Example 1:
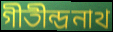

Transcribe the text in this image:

গীতীন্দ্রনাথ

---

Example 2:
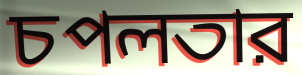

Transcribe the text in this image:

চপলতার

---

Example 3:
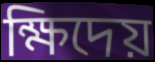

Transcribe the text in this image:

ক্ষিদেয়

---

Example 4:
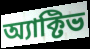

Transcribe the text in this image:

অ্যাক্টিভ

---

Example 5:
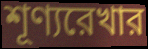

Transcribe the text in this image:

শূণ্যরেখার